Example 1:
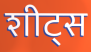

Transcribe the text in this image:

शीट्स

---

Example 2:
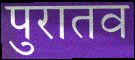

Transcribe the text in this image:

पुरातव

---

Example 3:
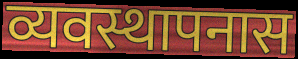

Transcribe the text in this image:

व्यवस्थापनास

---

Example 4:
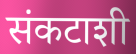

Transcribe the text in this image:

संकटाशी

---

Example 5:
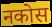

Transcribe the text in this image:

नकोस